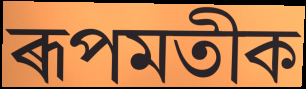
ৰূপমতীক